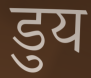
डुय